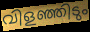
വിളഞ്ഞിടും